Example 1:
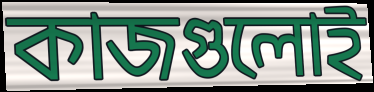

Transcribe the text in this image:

কাজগুলোই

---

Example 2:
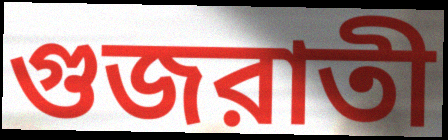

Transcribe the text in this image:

গুজরাতী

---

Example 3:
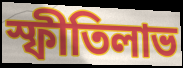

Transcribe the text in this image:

স্ফীতিলাভ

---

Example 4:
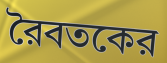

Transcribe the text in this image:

রৈবতকের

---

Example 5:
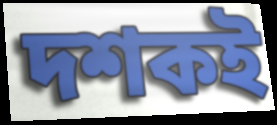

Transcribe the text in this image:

দশকই